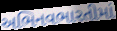
અભિનવભારતીમાં